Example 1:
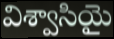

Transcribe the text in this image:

విశ్వాసియై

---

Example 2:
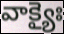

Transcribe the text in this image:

వాక్యైః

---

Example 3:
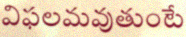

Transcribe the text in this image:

విఫలమవుతుంటే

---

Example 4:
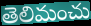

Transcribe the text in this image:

తెలిమంచు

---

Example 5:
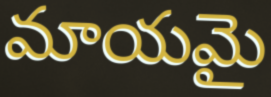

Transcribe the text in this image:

మాయమై